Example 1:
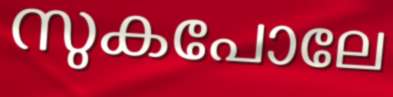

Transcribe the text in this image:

സുകപോലേ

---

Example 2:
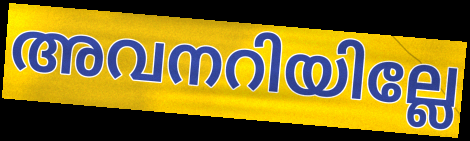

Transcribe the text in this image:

അവനറിയില്ലേ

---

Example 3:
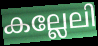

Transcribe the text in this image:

കല്ലേലി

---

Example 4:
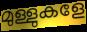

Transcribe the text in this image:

മുള്ളുകളേ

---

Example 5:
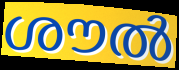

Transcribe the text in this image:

ശൗൽ